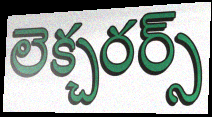
లెక్చరర్స్